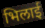
भिलाई